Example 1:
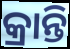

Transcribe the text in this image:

କ୍ରାନ୍ତି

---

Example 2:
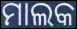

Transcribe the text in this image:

ମାଲକ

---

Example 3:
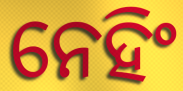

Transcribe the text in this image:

ନେହିଂ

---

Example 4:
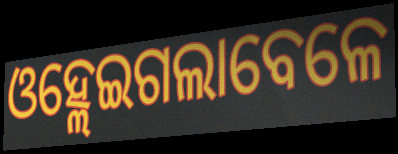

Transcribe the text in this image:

ଓହ୍ଲେଇଗଲାବେଳେ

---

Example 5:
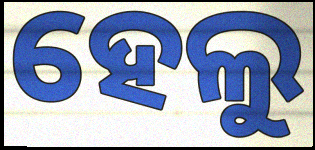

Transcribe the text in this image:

ହେଲୁ